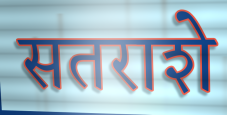
सतराशे